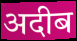
अदीब